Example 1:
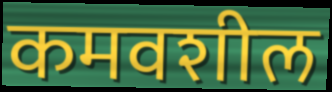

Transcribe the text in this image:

कमवशील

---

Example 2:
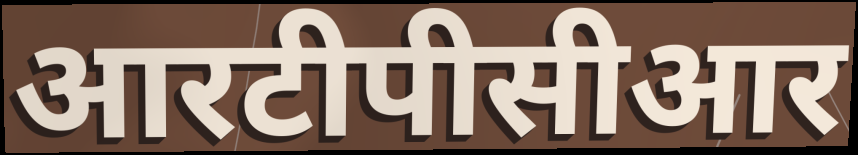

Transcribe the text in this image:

आरटीपीसीआर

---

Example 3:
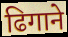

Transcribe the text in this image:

ढिगाने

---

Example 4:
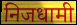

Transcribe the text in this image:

निजधामी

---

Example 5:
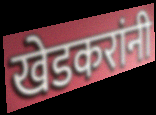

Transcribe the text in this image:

खेडकरांनी